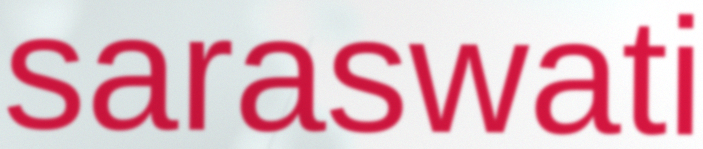
saraswati